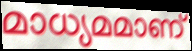
മാധ്യമമാണ്